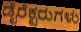
ಡೈರೆಕ್ಟರುಗಳು